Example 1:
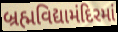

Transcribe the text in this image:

બ્રહ્મવિદ્યામંદિરમાં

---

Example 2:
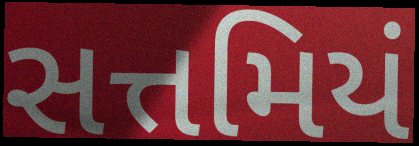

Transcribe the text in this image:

સત્તમિયં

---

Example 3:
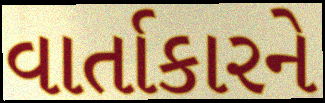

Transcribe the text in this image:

વાર્તાકારને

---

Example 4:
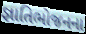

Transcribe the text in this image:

જ્ઞાતિભોજનના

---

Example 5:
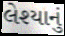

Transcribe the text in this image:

લેશ્યાનું